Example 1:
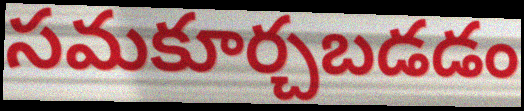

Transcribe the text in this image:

సమకూర్చబడడం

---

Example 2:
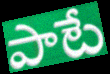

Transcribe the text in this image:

పాటే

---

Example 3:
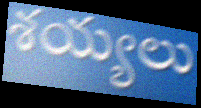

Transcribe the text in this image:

శయ్యలు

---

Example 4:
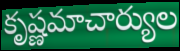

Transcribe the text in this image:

కృష్ణమాచార్యుల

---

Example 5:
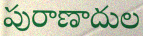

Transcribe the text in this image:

పురాణాదుల